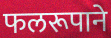
फलरूपाने